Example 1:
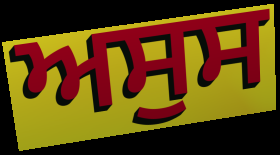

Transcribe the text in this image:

ਅਸੁਸ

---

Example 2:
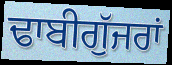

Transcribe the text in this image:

ਢਾਬੀਗੁੱਜਰਾਂ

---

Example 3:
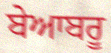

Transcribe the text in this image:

ਬੇਆਬਰੂ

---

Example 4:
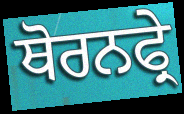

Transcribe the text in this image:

ਥੋਰਨਫ੍ਰੇ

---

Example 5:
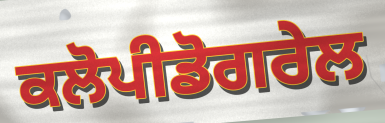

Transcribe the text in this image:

ਕਲੋਪੀਡੋਗਰੇਲ